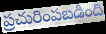
ప్రచురింపబడింది